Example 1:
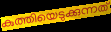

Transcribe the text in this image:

കുത്തിയെടുക്കുന്നത്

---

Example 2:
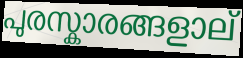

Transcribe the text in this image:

പുരസ്കാരങ്ങളാല്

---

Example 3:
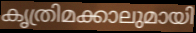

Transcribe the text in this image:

കൃത്രിമക്കാലുമായി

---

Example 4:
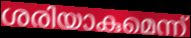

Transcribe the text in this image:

ശരിയാകുമെന്ന്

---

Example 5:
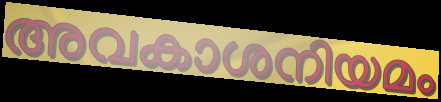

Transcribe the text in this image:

അവകാശനിയമം